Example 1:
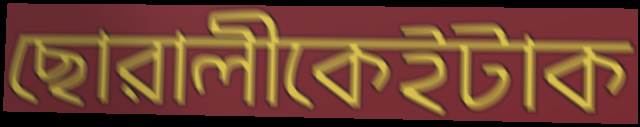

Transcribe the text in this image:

ছোৱালীকেইটাক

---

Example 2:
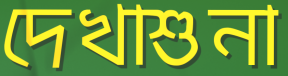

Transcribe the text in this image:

দেখাশুনা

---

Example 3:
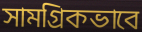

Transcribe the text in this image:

সামগ্ৰিকভাবে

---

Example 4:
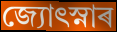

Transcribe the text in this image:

জ্যোৎস্নাৰ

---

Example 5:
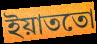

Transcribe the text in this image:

ইয়াততো